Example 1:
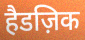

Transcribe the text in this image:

हैडज़िक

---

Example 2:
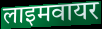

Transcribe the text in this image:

लाइमवायर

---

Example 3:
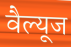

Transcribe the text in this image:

वैल्यूज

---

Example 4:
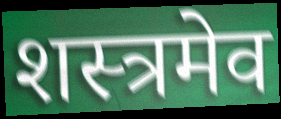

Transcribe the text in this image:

शस्त्रमेव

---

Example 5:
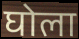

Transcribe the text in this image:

घोला